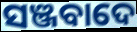
ସଞ୍ଜବାଦେ